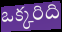
ఒక్కరిది